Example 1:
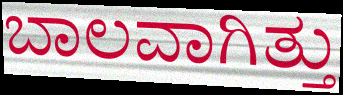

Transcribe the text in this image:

ಬಾಲವಾಗಿತ್ತು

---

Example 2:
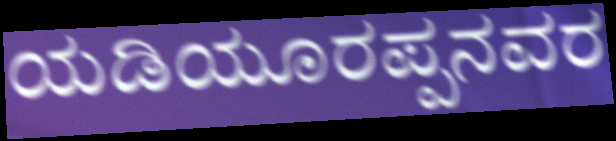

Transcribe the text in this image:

ಯಡಿಯೂರಪ್ಪನವರ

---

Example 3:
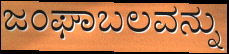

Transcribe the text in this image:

ಜಂಘಾಬಲವನ್ನು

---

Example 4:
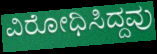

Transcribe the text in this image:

ವಿರೋಧಿಸಿದ್ದವು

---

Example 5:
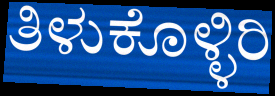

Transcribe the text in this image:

ತಿಳುಕೊಳ್ಳಿರಿ